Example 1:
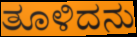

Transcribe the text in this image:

ತೂಳಿದನು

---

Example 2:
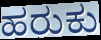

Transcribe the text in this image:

ಹರುಕು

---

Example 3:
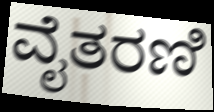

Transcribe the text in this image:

ವೈತರಣಿ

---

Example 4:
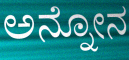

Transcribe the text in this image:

ಅನ್ನೋನ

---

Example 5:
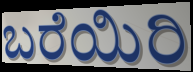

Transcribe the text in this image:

ಬರೆಯಿರಿ